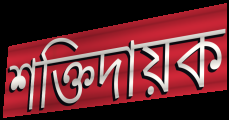
শক্তিদায়ক